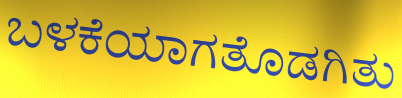
ಬಳಕೆಯಾಗತೊಡಗಿತು